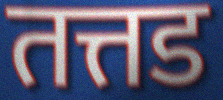
तत्तड